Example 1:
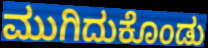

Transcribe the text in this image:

ಮುಗಿದುಕೊಂಡು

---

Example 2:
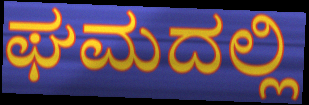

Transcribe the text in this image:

ಘಮದಲ್ಲಿ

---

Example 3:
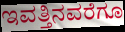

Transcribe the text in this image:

ಇವತ್ತಿನವರೆಗೂ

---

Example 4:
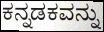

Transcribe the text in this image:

ಕನ್ನಡಕವನ್ನು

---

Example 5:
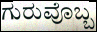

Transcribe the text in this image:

ಗುರುವೊಬ್ಬ